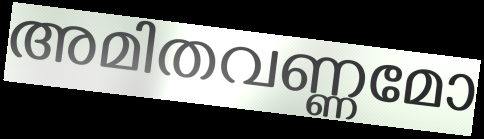
അമിതവണ്ണമോ